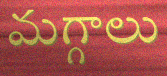
మగ్గాలు